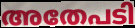
അതേപടി